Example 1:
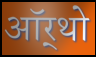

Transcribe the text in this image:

ऑर्थो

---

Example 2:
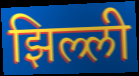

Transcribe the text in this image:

झिल्ली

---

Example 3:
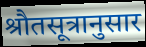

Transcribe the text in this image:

श्रौतसूत्रानुसार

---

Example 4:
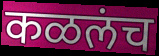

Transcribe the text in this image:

कळलंच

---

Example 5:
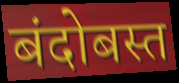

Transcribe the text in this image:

बंदोबस्त